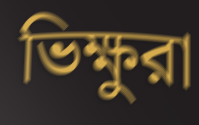
ভিক্ষুরা